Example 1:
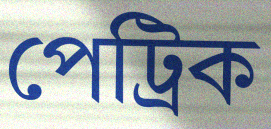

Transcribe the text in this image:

পেট্ৰিক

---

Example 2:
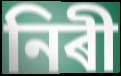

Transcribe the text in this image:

নিৰী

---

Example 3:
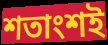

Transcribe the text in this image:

শতাংশই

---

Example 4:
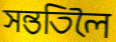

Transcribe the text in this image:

সন্ততিলৈ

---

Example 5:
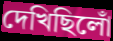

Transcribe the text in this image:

দেখিছিলোঁ